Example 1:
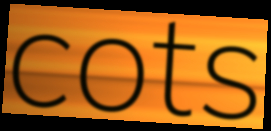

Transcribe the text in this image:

cots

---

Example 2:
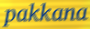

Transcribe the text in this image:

pakkana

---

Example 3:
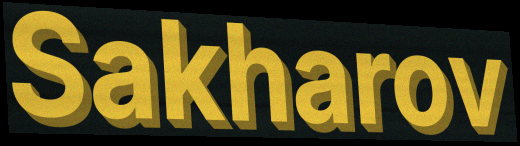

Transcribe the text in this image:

Sakharov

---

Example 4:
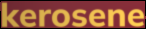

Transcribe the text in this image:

kerosene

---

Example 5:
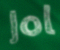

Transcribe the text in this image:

Jol